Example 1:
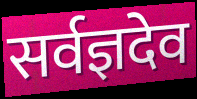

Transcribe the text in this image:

सर्वज्ञदेव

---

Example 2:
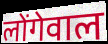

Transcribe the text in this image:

लोंगेवाल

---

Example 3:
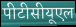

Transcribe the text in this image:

पीटीसीयूएल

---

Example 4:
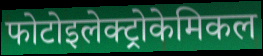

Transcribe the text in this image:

फोटोइलेक्ट्रोकेमिकल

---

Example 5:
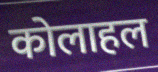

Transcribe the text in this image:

कोलाहल